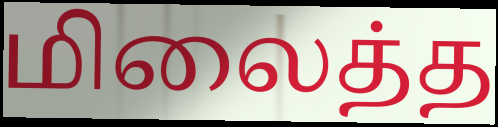
மிலைத்த